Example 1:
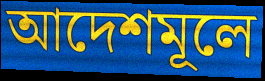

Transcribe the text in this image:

আদেশমূলে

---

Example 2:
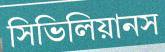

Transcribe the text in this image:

সিভিলিয়ানস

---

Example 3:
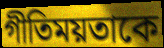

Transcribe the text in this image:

গীতিময়তাকে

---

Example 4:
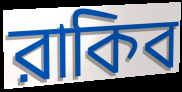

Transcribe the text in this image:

রাকিব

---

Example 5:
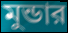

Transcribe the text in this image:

মুন্ডার